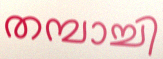
തമ്പാച്ചി